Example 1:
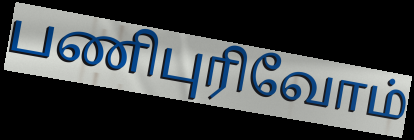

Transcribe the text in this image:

பணிபுரிவோம்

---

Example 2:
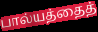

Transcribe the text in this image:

பால்யத்தைத்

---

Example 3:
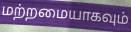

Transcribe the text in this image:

மற்றமையாகவும்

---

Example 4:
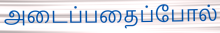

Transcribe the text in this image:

அடைப்பதைப்போல்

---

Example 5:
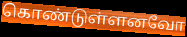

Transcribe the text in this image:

கொண்டுள்ளனவோ